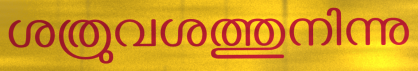
ശത്രുവശത്തുനിന്നു